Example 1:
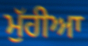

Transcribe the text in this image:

ਮੁੱਹੀਆ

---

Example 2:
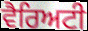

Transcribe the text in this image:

ਵੈਰਿਅਟੀ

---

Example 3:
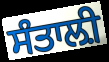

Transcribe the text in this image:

ਸੰਤਾਲ਼ੀ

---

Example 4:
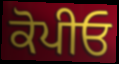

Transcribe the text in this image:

ਕੋਪੀਓ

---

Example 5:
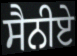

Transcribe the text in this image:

ਸੈਨੀਏ